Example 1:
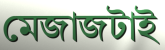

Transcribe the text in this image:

মেজাজটাই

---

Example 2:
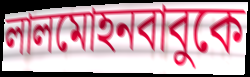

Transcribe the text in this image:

লালমোহনবাবুকে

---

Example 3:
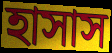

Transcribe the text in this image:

হাসাস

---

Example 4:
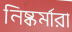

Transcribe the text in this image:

নিষ্কর্মারা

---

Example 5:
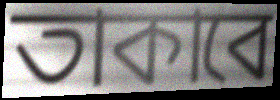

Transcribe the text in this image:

তাকাবে